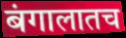
बंगालातच